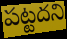
పట్టదని